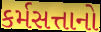
કર્મસત્તાનો